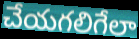
చేయగలిగేలా